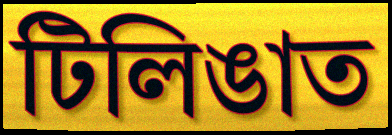
টিলিঙাত